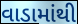
વાડામાંથી